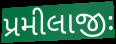
પ્રમીલાજીઃ